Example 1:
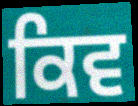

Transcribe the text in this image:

ਕਿਵ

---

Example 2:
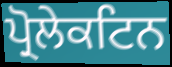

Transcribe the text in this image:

ਪ੍ਰੋਲੇਕਟਿਨ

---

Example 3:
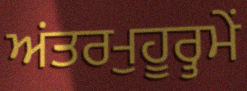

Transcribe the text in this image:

ਅਂਤਰ੍ਮੁਹੂਰ੍ਤਮੇਂ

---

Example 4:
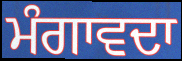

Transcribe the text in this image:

ਮੰਗਾਵਦਾ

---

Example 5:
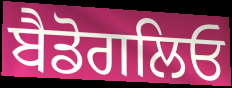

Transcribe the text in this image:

ਬੈਡੋਗਲਿਓ